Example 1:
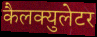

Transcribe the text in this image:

कैलक्युलेटर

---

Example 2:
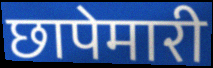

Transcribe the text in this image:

छापेमारी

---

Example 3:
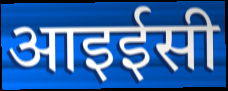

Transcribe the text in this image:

आइईसी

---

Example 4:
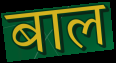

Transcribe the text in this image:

बाल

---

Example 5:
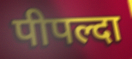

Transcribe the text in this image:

पीपल्दा